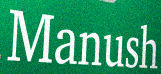
Manush